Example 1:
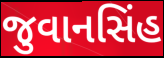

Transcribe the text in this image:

જુવાનસિંહ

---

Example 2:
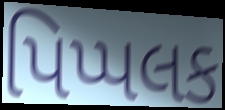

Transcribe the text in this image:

પિપ્પલક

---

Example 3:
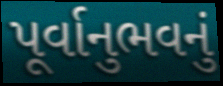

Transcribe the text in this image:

પૂર્વાનુભવનું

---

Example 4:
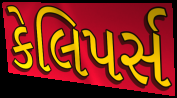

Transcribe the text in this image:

કેલિપર્સ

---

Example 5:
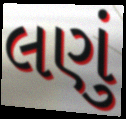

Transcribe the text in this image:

લણું